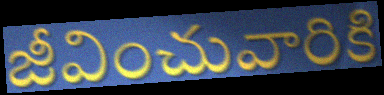
జీవించువారికి